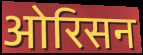
ओरिसन